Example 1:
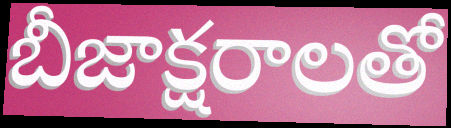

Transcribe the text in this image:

బీజాక్షరాలతో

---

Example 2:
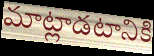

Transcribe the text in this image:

మాట్లాడటానికి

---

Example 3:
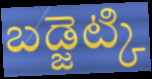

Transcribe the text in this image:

బడ్జెట్కి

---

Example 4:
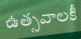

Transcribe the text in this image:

ఉత్సవాలకీ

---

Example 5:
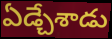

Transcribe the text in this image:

ఏడ్చేశాడు